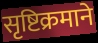
सृष्टिक्रमाने